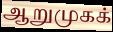
ஆறுமுகக்